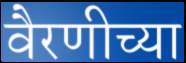
वैरणीच्या